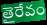
తైరేవం